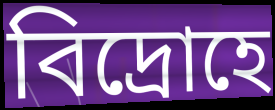
বিদ্রোহে